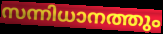
സന്നിധാനത്തും